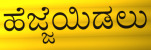
ಹೆಜ್ಜೆಯಿಡಲು